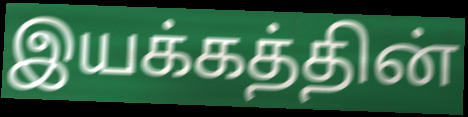
இயக்கத்தின்